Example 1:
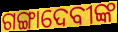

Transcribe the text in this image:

ଗଙ୍ଗାଦେବୀଙ୍କ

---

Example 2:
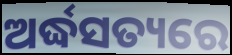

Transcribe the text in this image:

ଅର୍ଦ୍ଧସତ୍ୟରେ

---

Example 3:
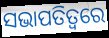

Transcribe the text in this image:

ସଭାପତିତ୍ଵରେ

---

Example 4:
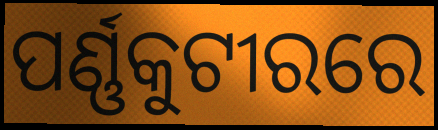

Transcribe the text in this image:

ପର୍ଣ୍ଣକୁଟୀରରେ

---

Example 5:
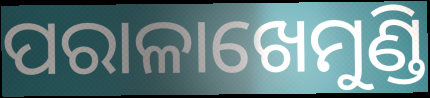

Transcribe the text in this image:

ପରାଳାଖେମୁଣ୍ଡି